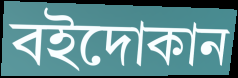
বইদোকান